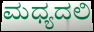
ಮಧ್ಯದಲಿ